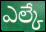
ఎల్కే